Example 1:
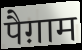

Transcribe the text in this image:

पैग़ाम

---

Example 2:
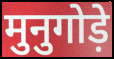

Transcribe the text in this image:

मुनुगोड़े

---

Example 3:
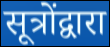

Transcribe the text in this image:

सूत्रोंद्वारा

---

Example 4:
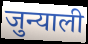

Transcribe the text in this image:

जुन्याली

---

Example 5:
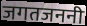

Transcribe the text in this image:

जगतजननी